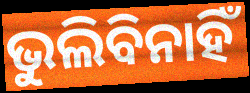
ଭୁଲିବିନାହିଁ